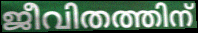
ജീവിതത്തിന്